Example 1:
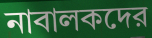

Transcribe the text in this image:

নাবালকদের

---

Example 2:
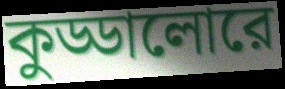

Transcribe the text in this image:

কুড্ডালোরে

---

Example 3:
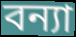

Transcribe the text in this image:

বন্যা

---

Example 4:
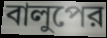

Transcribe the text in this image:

বালুপের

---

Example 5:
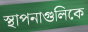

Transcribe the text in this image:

স্থাপনাগুলিকে